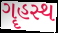
ગૄહસ્થ